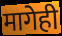
मागेही